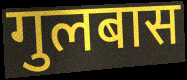
गुलबास